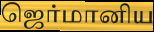
ஜெர்மானிய